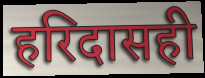
हरिदासही